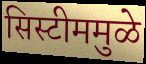
सिस्टीममुळे